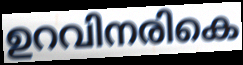
ഉറവിനരികെ